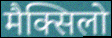
मैक्सिलो